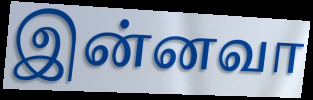
இன்னவா